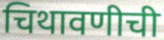
चिथावणीची